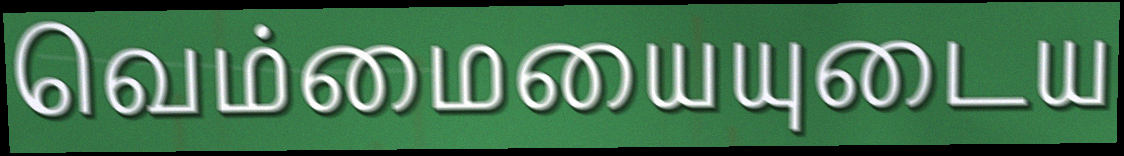
வெம்மையையுடைய